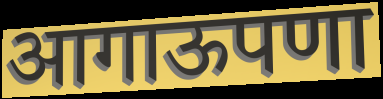
आगाऊपणा